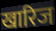
खारिज